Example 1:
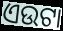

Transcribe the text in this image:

ଏଉଟା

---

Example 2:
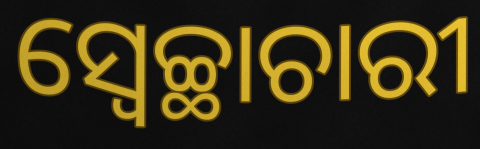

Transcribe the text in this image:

ସ୍ଵେଚ୍ଛାଚାରୀ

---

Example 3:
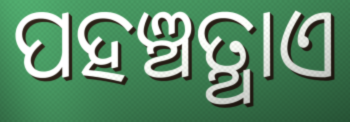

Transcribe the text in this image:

ପହଞ୍ଚତ୍ଥାଏ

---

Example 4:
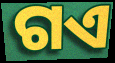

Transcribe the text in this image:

ଗଏ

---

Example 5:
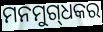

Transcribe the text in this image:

ମନମୁଗ୍‌ଧକର